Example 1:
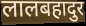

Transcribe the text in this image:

लालबहादुर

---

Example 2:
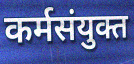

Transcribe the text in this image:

कर्मसंयुक्त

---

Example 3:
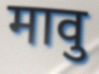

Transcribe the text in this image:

मावु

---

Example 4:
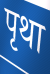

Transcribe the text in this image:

पृथा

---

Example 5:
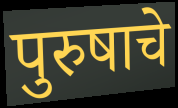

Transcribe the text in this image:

पुरुषाचे